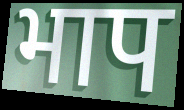
भाप